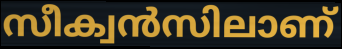
സീക്വൻസിലാണ്